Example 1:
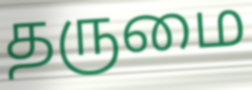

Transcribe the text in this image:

தருமை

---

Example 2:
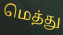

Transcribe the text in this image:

மெத்து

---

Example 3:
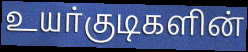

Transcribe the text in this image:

உயர்குடிகளின்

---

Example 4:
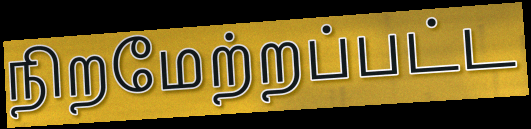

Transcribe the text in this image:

நிறமேற்றப்பட்ட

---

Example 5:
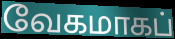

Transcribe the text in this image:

வேகமாகப்